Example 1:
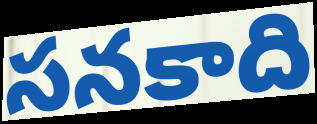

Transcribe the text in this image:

సనకాది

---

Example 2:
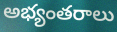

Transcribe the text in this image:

అభ్యంతరాలు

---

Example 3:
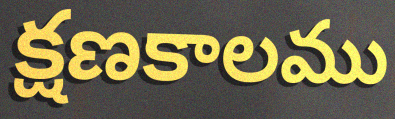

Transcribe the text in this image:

క్షణకాలము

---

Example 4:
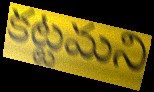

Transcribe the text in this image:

కట్టమని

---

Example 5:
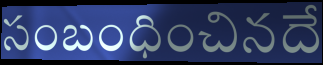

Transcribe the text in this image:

సంబంధించినదే